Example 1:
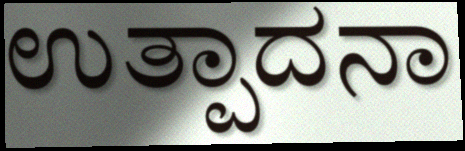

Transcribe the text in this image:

ಉತ್ಪಾದನಾ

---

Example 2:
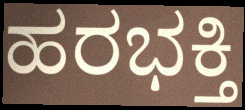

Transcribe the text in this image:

ಹರಭಕ್ತಿ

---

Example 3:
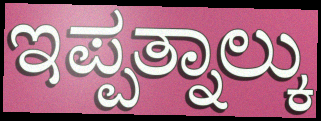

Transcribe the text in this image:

ಇಪ್ಪತ್ನಾಲ್ಕು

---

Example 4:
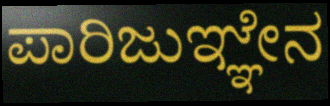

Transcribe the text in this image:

ಪಾರಿಜುಞ್ಞೇನ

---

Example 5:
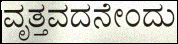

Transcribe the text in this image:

ವೃತ್ತವದನೇಂದು